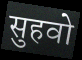
सुहवो